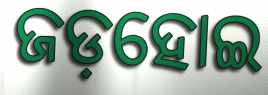
ଜଡ଼ହୋଇ